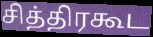
சித்திரகூட